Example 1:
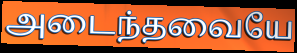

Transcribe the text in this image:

அடைந்தவையே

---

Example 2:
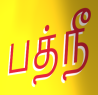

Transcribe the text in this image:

பத்நீ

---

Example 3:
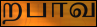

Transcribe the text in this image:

றபாவ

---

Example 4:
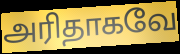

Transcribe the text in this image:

அரிதாகவே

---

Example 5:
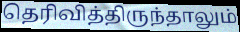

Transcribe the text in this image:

தெரிவித்திருந்தாலும்